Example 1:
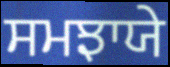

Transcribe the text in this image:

ਸਮਝਾਯੇ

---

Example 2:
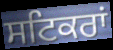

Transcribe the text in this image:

ਸਟਿਕਰਾਂ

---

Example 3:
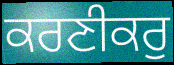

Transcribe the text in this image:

ਕਰਣੀਕਰੁ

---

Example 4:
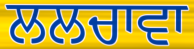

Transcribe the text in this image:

ਲਲਚਾਵਾ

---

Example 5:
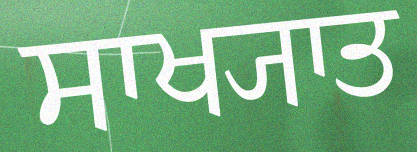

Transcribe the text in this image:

ਸਾਖ੍ਯਾਤ